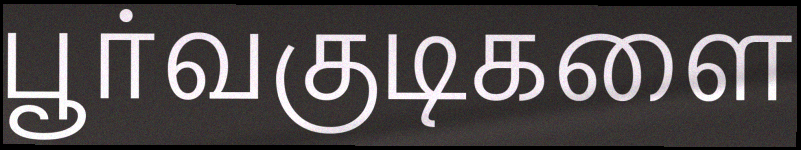
பூர்வகுடிகளை